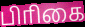
பிரிகை